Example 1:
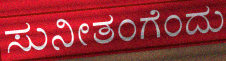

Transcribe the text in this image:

ಸುನೀತಂಗೆಂದು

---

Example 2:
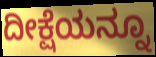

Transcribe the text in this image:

ದೀಕ್ಷೆಯನ್ನೂ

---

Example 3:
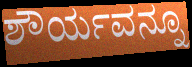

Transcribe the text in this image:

ಶೌರ್ಯವನ್ನೂ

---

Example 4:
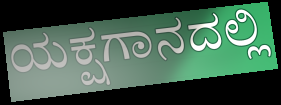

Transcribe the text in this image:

ಯಕ್ಷಗಾನದಲ್ಲಿ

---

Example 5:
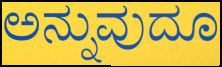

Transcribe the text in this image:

ಅನ್ನುವುದೂ